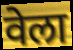
वेला